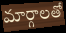
మార్గాలతో